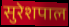
सुरेशपाल